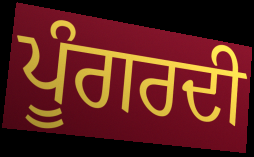
ਪੂੰਗਰਦੀ